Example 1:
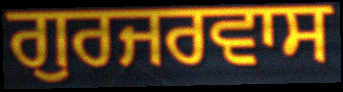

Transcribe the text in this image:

ਗੁਰਜਰਵਾਸ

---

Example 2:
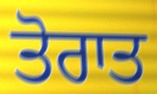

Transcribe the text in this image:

ਤੋਰਾਤ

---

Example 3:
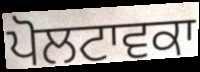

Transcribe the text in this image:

ਪੋਲਟਾਵਕਾ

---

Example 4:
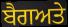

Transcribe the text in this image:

ਬੈਗਅਤੇ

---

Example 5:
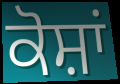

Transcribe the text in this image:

ਕੋਸ਼ਾਂ